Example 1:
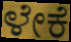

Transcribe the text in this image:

ಳೇಕೆ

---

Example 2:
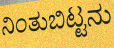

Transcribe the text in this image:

ನಿಂತುಬಿಟ್ಟನು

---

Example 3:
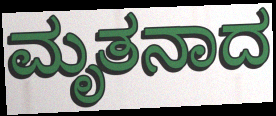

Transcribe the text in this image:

ಮೃತನಾದ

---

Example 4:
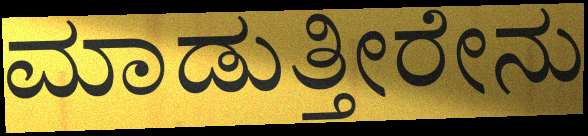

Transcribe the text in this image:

ಮಾಡುತ್ತೀರೇನು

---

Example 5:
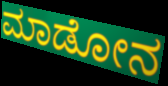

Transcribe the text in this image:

ಮಾಡೋನ